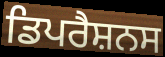
ਡਿਪਰੈਸ਼ਨਸ